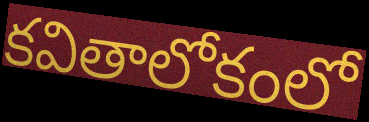
కవితాలోకంలో